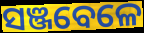
ସଞ୍ଜବେଳେ